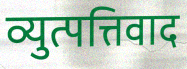
व्युत्पत्तिवाद